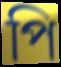
পি